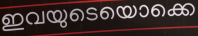
ഇവയുടെയൊക്കെ